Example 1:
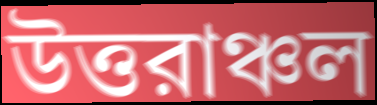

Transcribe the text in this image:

উত্তরাঞ্চল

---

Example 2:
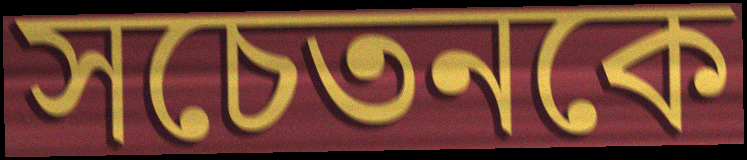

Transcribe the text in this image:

সচেতনকে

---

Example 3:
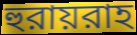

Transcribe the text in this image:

হুরায়রাহ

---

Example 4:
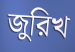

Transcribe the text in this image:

জুরিখ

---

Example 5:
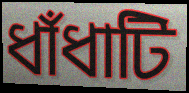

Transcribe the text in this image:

ধাঁধাটি